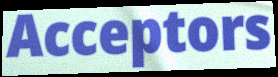
Acceptors